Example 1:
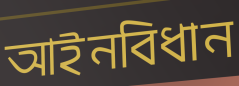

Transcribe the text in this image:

আইনবিধান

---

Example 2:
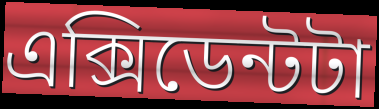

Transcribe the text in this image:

এক্সিডেন্টটা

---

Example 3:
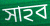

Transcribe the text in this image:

সাহব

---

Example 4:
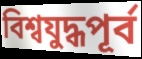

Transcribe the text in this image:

বিশ্বযুদ্ধপূর্ব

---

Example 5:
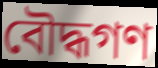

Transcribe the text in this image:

বৌদ্ধগণ